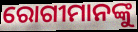
ରୋଗୀମାନଙ୍କୁ